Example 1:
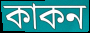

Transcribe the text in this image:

কাকন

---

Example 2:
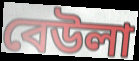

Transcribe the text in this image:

বেউলা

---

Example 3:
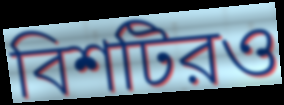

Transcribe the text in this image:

বিশটিরও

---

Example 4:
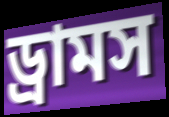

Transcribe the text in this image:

ড্রামস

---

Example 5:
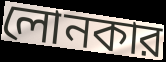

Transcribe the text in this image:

লোনকার